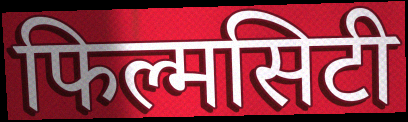
फिल्मसिटी